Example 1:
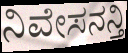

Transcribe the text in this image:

ನಿವೇಸನನ್ತಿ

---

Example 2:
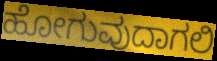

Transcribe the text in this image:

ಹೋಗುವುದಾಗಲಿ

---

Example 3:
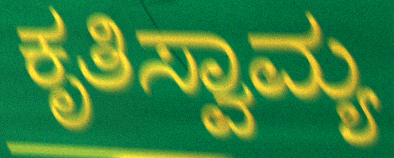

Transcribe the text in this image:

ಕೃತಿಸ್ವಾಮ್ಯ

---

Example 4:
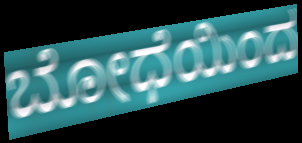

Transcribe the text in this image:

ಬೋಧೆಯಿಂದ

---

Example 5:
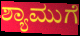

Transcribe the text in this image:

ಶ್ಯಾಮುಗೆ